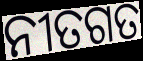
ନୀତଗତ